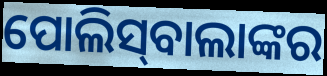
ପୋଲିସ୍‌ବାଲାଙ୍କର